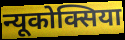
न्यूकोक्सिया